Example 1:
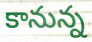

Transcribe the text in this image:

కానున్న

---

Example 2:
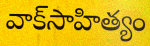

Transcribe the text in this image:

వాక్‌సాహిత్యం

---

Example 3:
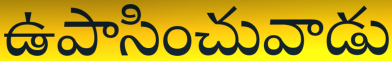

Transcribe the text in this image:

ఉపాసించువాడు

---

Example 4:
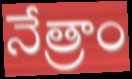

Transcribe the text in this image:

నేత్రాం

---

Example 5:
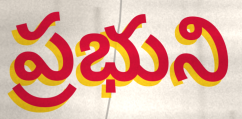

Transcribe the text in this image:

ప్రభుని